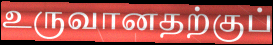
உருவானதற்குப்